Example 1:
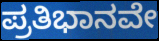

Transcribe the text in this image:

ಪ್ರತಿಭಾನವೇ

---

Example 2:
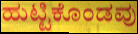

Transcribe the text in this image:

ಹುಟ್ಟಿಕೊಂಡವು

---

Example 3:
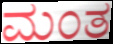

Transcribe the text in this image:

ಮಂತ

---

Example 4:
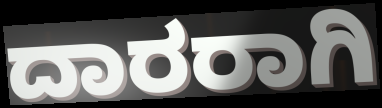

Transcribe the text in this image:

ದಾರರಾಗಿ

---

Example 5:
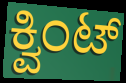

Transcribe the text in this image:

ಕ್ವಿಂಟ್